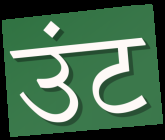
उंट